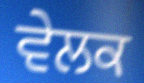
ਵੇਲਕ